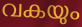
വകയും